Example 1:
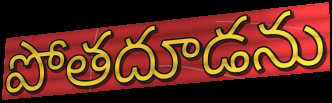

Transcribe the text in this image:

పోతదూడను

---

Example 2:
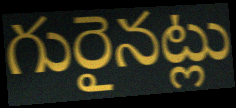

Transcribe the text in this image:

గురైనట్లు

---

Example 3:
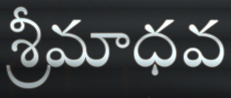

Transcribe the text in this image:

శ్రీమాధవ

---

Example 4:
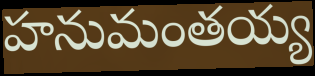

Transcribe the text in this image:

హనుమంతయ్య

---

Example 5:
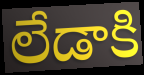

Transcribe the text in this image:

లేడాకి